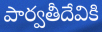
పార్వతీదేవికి